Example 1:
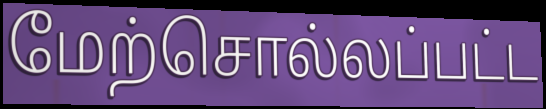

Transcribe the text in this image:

மேற்சொல்லப்பட்ட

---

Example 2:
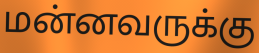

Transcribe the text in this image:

மன்னவருக்கு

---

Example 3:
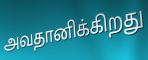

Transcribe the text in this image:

அவதானிக்கிறது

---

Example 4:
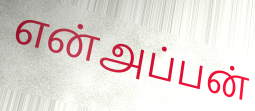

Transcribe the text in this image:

என்அப்பன்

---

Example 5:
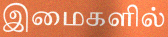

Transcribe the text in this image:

இமைகளில்